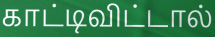
காட்டிவிட்டால்